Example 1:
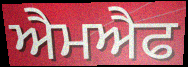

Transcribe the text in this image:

ਐਮਐਫ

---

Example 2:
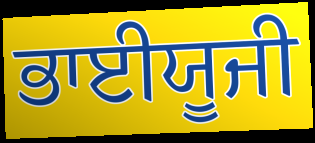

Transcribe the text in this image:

ਭਾਈਯੂਜੀ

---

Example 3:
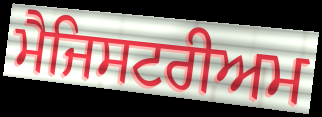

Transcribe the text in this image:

ਮੈਜਿਸਟਰੀਅਮ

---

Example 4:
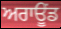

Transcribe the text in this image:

ਅਰਾਊਂਡ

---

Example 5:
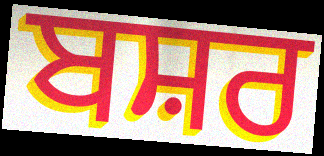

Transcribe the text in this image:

ਬਸ਼ਰ